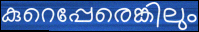
കുറെപ്പേരെങ്കിലും